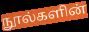
நூல்களின்